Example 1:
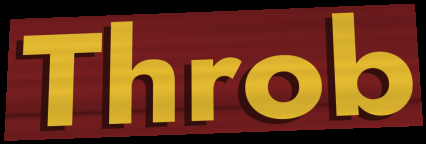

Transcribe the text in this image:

Throb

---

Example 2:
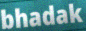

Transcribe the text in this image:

bhadak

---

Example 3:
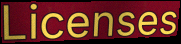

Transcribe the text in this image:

Licenses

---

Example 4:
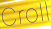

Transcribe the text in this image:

Croll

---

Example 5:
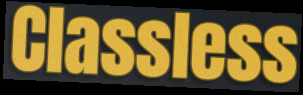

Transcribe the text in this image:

Classless